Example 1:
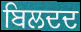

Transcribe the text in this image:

ਬਿਲਦਦ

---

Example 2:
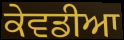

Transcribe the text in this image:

ਕੇਵਡੀਆ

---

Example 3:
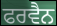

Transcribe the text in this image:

ਫਰਵੈਨ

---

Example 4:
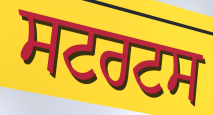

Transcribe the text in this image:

ਸਟਰਟਸ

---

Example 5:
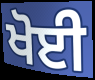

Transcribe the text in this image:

ਖੋਈ